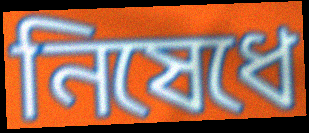
নিষেধে